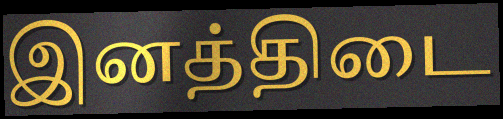
இனத்திடை